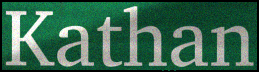
Kathan